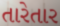
તારેતાર